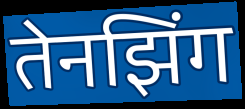
तेनझिंग